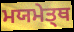
ਮਯਮੇਤ੍ਥ